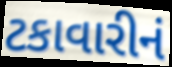
ટકાવારીનં